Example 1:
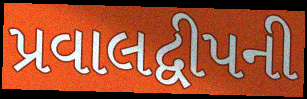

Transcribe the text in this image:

પ્રવાલદ્વીપની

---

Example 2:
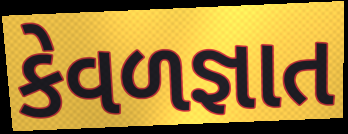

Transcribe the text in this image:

કેવળજ્ઞાત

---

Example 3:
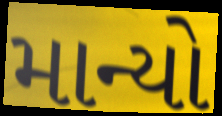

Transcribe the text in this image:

માન્યો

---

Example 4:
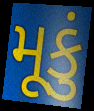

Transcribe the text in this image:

મૂકું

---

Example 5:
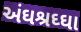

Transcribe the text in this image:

અંઘશ્રઘ્ઘા